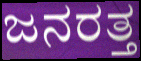
ಜನರತ್ತ